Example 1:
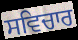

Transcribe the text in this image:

ਸਵਿਚਾਰ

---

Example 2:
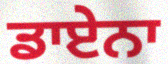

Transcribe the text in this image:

ਡਾਏਨਾ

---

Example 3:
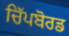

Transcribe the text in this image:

ਚਿੱਪਬੋਰਡ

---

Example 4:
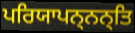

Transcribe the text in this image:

ਪਰਿਯਾਪਨ੍ਨਨ੍ਤਿ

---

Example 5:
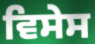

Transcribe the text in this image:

ਵਿਸੇਸ